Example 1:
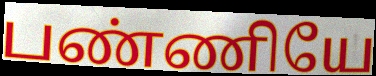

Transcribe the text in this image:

பண்ணியே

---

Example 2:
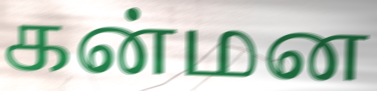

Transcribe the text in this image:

கன்மன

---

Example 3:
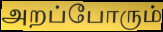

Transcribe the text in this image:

அறப்போரும்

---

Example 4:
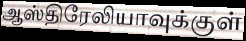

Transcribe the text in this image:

ஆஸ்திரேலியாவுக்குள்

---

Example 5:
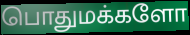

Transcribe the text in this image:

பொதுமக்களோ